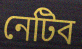
নেটিব